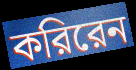
করিরেন